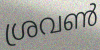
ശ്രവൺ